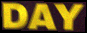
DAY